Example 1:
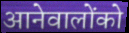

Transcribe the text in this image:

आनेवालोंको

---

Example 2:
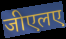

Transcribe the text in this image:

जीएलए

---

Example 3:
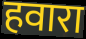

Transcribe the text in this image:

हवारा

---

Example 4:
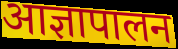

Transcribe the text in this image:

आज्ञापालन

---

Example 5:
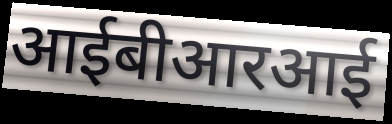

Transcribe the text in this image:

आईबीआरआई